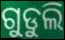
ଗୁଡୁଲି